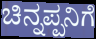
ಚಿನ್ನಪ್ಪನಿಗೆ